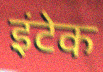
इंटेक